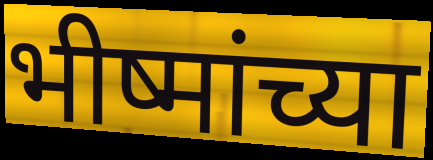
भीष्मांच्या